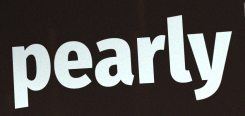
pearly